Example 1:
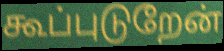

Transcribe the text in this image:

கூப்புடுறேன்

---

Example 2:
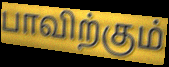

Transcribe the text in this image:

பாவிற்கும்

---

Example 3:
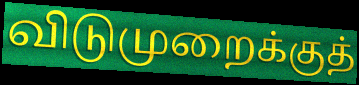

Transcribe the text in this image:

விடுமுறைக்குத்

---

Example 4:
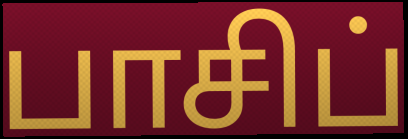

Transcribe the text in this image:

பாசிப்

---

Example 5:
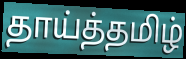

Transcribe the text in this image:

தாய்த்தமிழ்